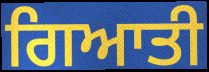
ਗਿਆਤੀ